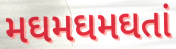
મઘમઘમઘતાં